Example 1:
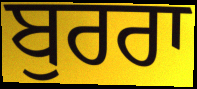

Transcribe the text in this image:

ਬੁਰਰਾ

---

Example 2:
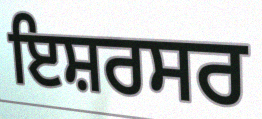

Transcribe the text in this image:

ਇਸ਼ਰਸਰ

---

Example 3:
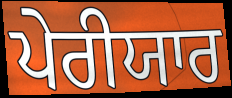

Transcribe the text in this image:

ਪੇਰੀਯਾਰ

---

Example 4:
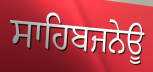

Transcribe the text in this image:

ਸਾਹਿਬਜਨੇਊ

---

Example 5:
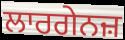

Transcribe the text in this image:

ਲਾਰਗੇਨਜ਼